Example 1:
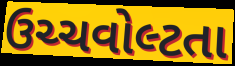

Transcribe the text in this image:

ઉચ્ચવોલ્ટતા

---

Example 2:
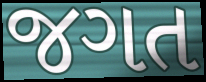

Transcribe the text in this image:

જગત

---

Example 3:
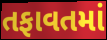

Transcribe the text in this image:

તફાવતમાં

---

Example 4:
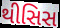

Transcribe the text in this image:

થીસિસ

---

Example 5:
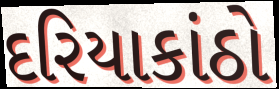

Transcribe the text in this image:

દરિયાકાંઠો